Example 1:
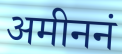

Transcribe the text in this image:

अमीननं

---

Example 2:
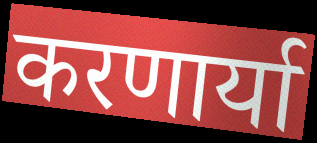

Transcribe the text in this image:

करणार्या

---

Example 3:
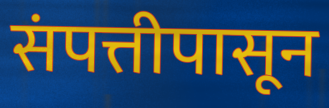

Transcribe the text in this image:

संपत्तीपासून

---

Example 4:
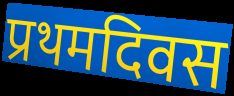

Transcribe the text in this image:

प्रथमदिवस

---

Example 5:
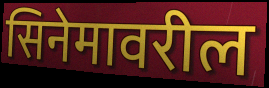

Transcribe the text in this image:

सिनेमावरील